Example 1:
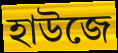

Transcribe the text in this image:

হাউজে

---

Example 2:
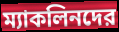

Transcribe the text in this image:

ম্যাকলিনদের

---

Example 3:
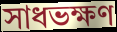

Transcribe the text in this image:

সাধভক্ষণ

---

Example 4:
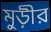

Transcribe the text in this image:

মুড়ীর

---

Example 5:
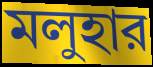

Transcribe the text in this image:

মলুহার